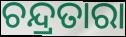
ଚନ୍ଦ୍ରତାରା